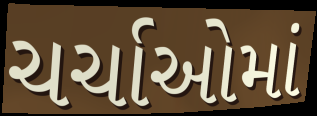
ચર્ચાઓમાં